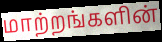
மாற்றங்களின்